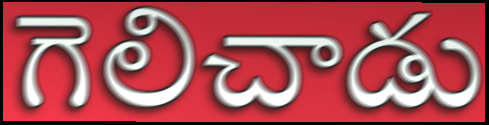
గెలిచాడు